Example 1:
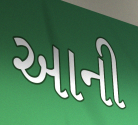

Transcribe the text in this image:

આની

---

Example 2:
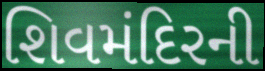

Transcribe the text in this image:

શિવમંદિરની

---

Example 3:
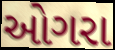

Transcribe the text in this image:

ઓગરા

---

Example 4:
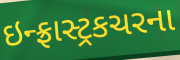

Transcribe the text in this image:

ઇન્ફ્રાસ્ટ્રકચરના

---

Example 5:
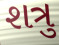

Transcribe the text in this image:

શત્રુ